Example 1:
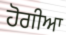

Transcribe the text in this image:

ਹੋਗੀਆ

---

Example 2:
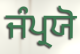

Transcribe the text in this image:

ਜੰਪ੍ਰਯੋ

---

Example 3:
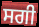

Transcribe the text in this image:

ਸਗੀ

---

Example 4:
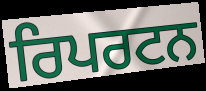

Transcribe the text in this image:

ਰਿਪਰਟਨ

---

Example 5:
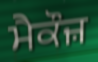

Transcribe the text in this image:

ਮੈਕੌਜ਼